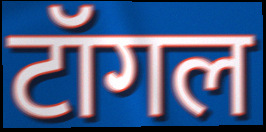
टॉगल